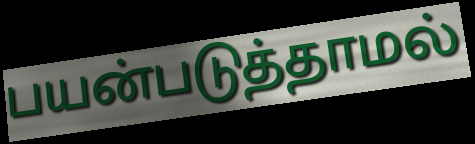
பயன்படுத்தாமல்